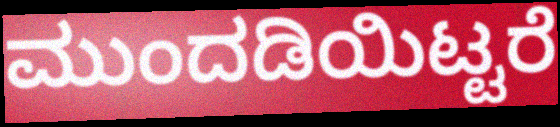
ಮುಂದಡಿಯಿಟ್ಟರೆ